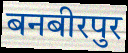
बनबीरपुर